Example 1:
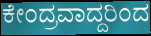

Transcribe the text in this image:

ಕೇಂದ್ರವಾದ್ದರಿಂದ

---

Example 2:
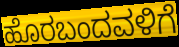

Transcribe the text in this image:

ಹೊರಬಂದವಳಿಗೆ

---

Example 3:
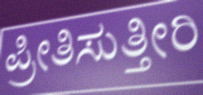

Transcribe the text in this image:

ಪ್ರೀತಿಸುತ್ತೀರಿ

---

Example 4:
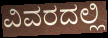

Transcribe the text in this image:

ವಿವರದಲ್ಲಿ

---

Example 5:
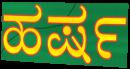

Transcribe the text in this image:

ಹರ್ಷ